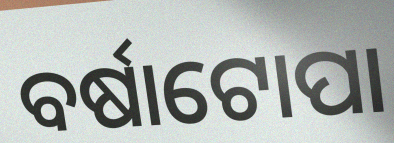
ବର୍ଷାଟୋପା